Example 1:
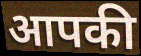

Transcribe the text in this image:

आपकी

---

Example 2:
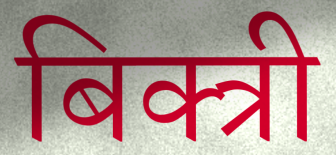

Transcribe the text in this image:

बिक्त्री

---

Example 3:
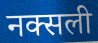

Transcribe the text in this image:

नक्सली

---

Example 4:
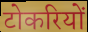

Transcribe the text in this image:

टोकरियों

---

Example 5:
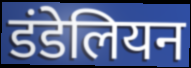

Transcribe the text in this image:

डंडेलियन